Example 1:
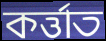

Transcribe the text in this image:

কৰ্ত্তাত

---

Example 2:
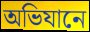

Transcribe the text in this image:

অভিযানে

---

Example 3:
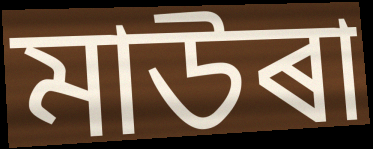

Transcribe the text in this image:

মাউৰা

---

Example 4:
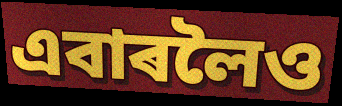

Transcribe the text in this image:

এবাৰলৈও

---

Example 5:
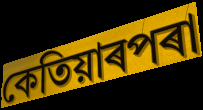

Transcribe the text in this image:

কেতিয়াৰপৰা